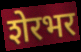
शेरभर